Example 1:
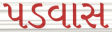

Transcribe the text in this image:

પડવાસ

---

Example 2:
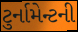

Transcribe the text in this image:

ટુર્નામેન્ટની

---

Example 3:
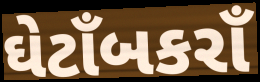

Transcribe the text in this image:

ઘેટાઁબકરાઁ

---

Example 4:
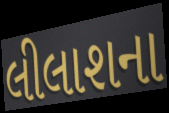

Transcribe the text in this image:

લીલાશના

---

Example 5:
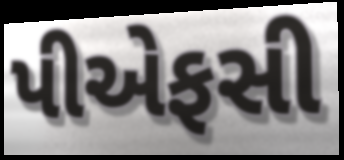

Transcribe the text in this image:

પીએફસી